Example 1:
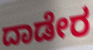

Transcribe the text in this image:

ದಾಡೇರ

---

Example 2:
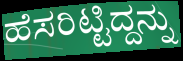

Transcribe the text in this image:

ಹೆಸರಿಟ್ಟಿದ್ದನ್ನು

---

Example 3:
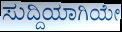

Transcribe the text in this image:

ಸುದ್ದಿಯಾಗಿಯೇ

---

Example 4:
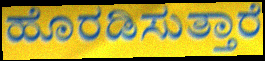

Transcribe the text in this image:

ಹೊರಡಿಸುತ್ತಾರೆ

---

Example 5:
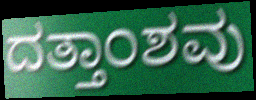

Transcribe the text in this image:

ದತ್ತಾಂಶವು